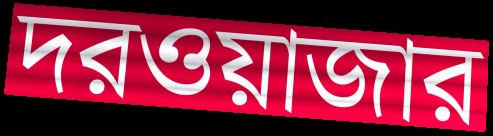
দরওয়াজার